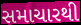
સમાચારથી